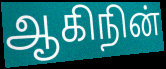
ஆகிநின்